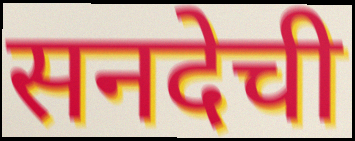
सनदेची